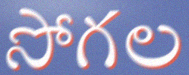
సోగల